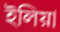
ইলিয়া